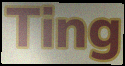
Ting